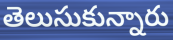
తెలుసుకున్నారు